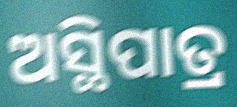
ଅସ୍ଥିପାତ୍ର